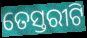
ତେସ୍ତରୀଟି